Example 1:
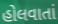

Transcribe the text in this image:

હોલવાતાં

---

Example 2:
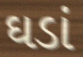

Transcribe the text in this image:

ઘડાં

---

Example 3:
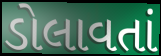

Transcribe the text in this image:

ડોલાવતાં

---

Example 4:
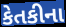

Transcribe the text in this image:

કેતકીના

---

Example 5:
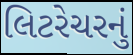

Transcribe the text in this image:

લિટરેચરનું